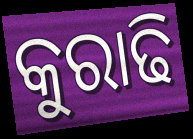
କୁରାଢି